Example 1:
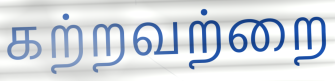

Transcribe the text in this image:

கற்றவற்றை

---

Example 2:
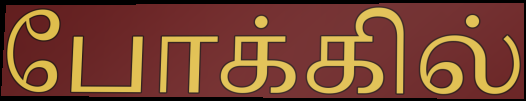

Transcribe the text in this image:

போக்கில்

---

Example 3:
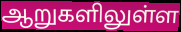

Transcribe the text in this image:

ஆறுகளிலுள்ள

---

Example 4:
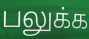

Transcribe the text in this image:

பலுக்க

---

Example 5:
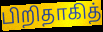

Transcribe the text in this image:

பிறிதாகித்